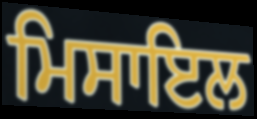
ਮਿਸਾਇਲ